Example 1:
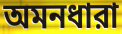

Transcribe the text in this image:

অমনধারা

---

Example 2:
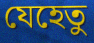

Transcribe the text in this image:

যেহেতু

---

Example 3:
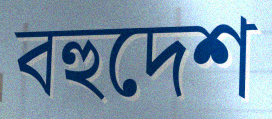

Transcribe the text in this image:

বহুদেশ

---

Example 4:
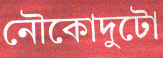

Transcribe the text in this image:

নৌকোদুটো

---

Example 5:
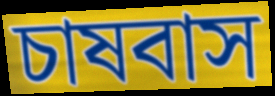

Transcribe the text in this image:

চাষবাস